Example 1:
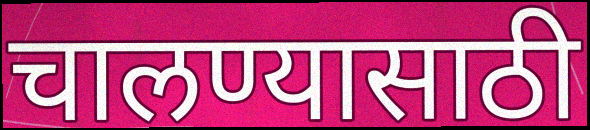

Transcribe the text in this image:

चालण्यासाठी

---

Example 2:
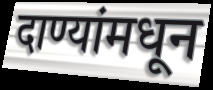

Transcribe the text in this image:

दाण्यांमधून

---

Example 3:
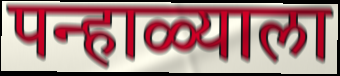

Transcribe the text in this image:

पन्हाळ्याला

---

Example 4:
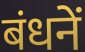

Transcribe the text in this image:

बंधनें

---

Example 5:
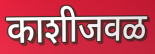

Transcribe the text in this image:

काशीजवळ